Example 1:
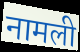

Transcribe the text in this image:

नामली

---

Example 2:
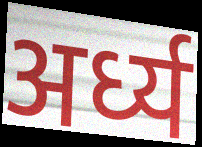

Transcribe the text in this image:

अर्ध्य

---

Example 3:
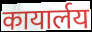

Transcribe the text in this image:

कायार्लय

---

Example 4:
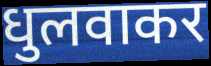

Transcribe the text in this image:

धुलवाकर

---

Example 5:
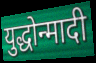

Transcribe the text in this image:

युद्धोन्मादी